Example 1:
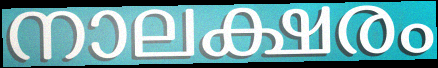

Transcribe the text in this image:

നാലക്ഷരം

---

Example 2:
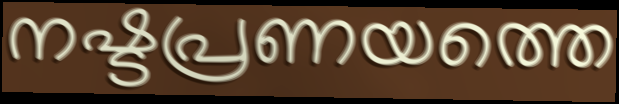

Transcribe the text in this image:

നഷ്ടപ്രണയത്തെ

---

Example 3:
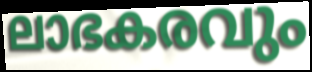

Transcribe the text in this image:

ലാഭകരവും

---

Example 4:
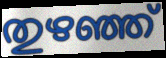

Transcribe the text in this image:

തുഴഞ്ഞ്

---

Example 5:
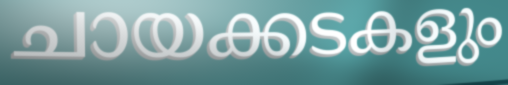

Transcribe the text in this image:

ചായക്കടകളും